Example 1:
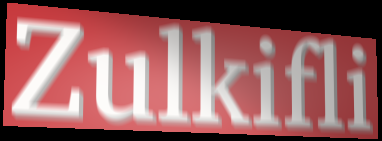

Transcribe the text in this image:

Zulkifli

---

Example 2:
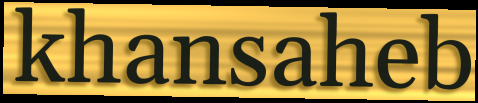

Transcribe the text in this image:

khansaheb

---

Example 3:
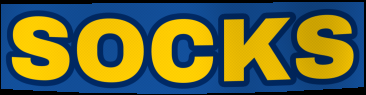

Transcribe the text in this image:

SOCKS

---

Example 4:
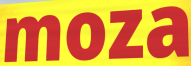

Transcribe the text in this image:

moza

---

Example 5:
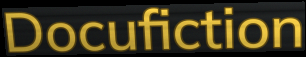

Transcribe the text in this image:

Docufiction